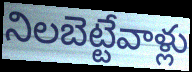
నిలబెట్టేవాళ్లు